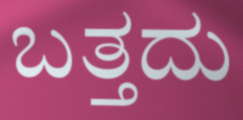
ಬತ್ತದು